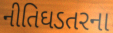
નીતિઘડતરના